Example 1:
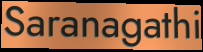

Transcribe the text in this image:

Saranagathi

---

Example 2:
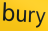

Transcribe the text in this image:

bury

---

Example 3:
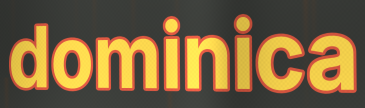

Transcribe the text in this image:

dominica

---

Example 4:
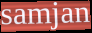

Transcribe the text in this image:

samjan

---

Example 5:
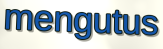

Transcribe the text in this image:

mengutus